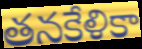
తనకేళికా